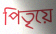
পিতৃয়ে